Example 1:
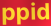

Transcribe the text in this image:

ppid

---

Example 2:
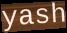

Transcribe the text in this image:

yash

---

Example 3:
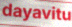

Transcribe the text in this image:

dayavitu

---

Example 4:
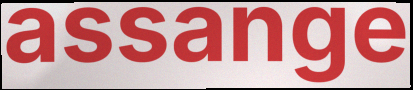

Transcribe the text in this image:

assange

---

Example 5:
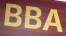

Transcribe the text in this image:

BBA